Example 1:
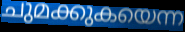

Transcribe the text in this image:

ചുമക്കുകയെന്ന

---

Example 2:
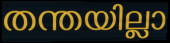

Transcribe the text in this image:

തന്തയില്ലാ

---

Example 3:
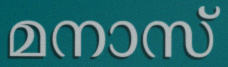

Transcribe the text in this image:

മനാസ്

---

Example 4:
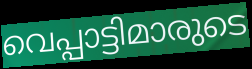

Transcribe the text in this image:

വെപ്പാട്ടിമാരുടെ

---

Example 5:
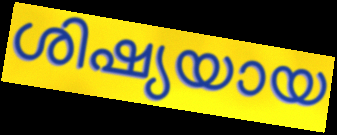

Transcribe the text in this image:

ശിഷ്യയായ